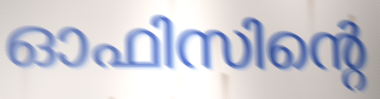
ഓഫിസിന്റെ